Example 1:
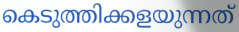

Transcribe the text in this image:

കെടുത്തിക്കളയുന്നത്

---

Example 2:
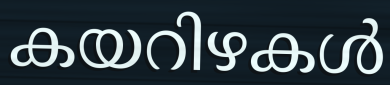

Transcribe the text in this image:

കയറിഴകൾ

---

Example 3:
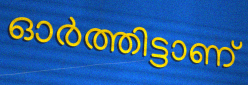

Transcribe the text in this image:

ഓർത്തിട്ടാണ്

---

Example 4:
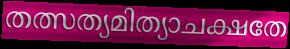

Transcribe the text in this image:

തത്സത്യമിത്യാചക്ഷതേ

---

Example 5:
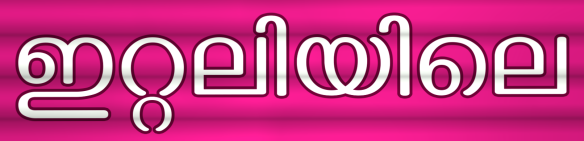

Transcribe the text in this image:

ഇറ്റലിയിലെ